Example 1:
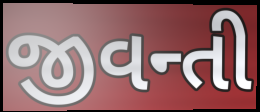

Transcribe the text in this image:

જીવન્તી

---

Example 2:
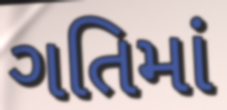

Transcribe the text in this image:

ગતિમાં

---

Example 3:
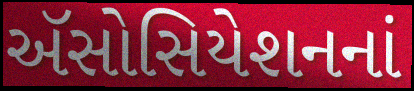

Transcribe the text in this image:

ઍસોસિયેશનનાં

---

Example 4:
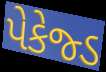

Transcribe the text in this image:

પેકેજ્ડ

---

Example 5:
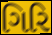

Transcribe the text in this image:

ગિરિ